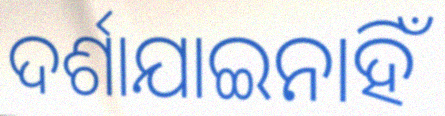
ଦର୍ଶାଯାଇନାହିଁ